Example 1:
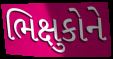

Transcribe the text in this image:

ભિક્ષુકોને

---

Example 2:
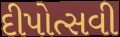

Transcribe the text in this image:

દીપોત્સવી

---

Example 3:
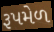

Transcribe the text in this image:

રૂપમેળ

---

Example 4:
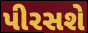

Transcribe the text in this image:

પીરસશે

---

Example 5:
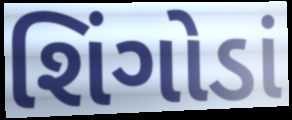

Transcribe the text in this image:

શિંગોડાં